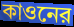
কাওনের